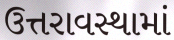
ઉત્તરાવસ્થામાં